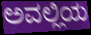
ಅವಲ್ಲಿಯ